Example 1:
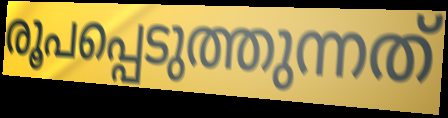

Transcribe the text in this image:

രൂപപ്പെടുത്തുന്നത്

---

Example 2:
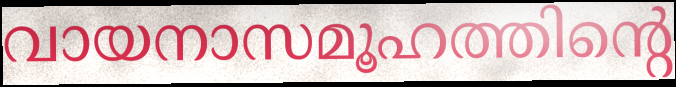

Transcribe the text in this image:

വായനാസമൂഹത്തിന്റെ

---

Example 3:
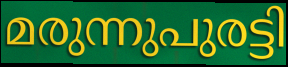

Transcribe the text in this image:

മരുന്നുപുരട്ടി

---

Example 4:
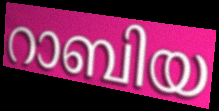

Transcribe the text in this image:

റാബിയ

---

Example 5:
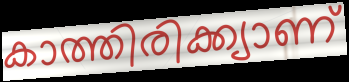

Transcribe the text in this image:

കാത്തിരിക്ക്യാണ്